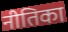
नीतिका